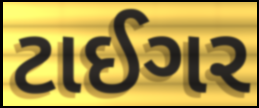
ટાઈગર